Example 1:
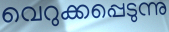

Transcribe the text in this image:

വെറുക്കപ്പെടുന്നു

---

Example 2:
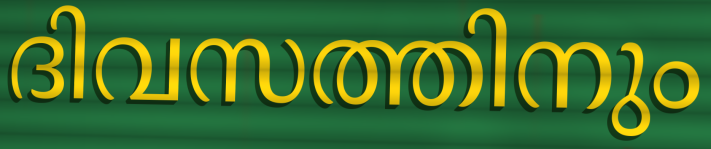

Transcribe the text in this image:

ദിവസത്തിനും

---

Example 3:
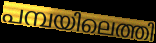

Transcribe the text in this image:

പമ്പയിലെത്തി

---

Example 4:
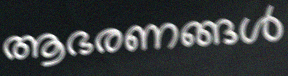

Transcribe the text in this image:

ആഭരണങ്ങൾ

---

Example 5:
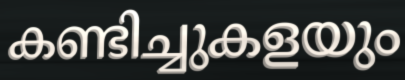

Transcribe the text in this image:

കണ്ടിച്ചുകളയും